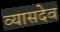
व्यासदेव